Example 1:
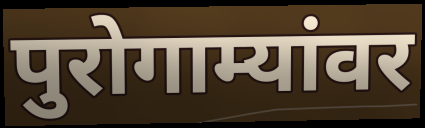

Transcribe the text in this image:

पुरोगाम्यांवर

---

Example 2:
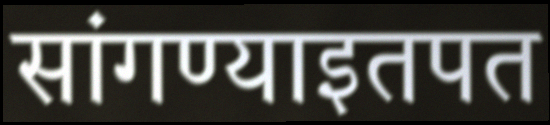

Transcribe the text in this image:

सांगण्याइतपत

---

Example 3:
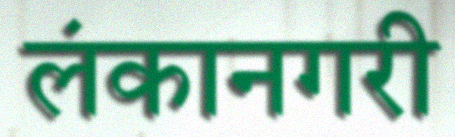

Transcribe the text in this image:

लंकानगरी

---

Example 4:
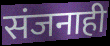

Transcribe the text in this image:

संजनाही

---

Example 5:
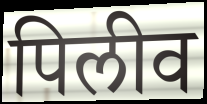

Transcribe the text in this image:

पिलीव